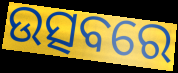
ଉତ୍ସବରେ